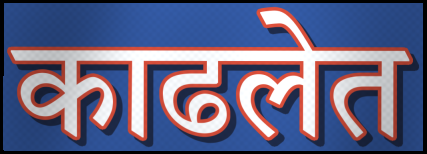
काढलेत